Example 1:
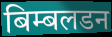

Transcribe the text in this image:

बिम्बलडन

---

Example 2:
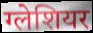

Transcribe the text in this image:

ग्‍लेशियर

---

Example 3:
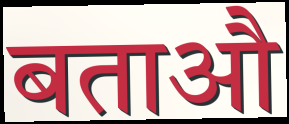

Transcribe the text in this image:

बताऔ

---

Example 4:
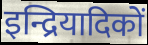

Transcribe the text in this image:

इन्द्रियादिकों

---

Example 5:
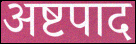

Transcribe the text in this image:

अष्टपाद